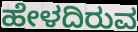
ಹೇಳದಿರುವ